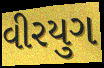
વીરયુગ